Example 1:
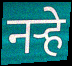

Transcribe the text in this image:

नऱ्हे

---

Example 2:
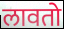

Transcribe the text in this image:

लावतो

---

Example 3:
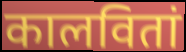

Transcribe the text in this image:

कालवितां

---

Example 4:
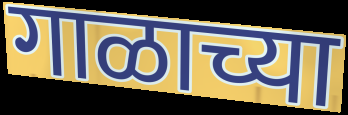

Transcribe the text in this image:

गाळाच्या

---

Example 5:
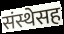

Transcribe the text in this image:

संस्थेसह